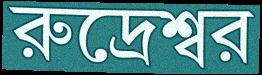
রুদ্রেশ্বর